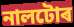
নালটোৰ